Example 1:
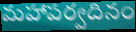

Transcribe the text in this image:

మహాపర్వదినం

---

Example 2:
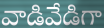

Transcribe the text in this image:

వాడివేడిగా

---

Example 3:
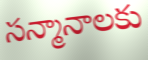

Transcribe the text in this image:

సన్మానాలకు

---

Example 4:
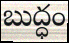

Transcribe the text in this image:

బుద్ధం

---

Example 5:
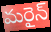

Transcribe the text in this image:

మరైన్